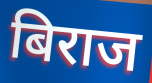
बिराज